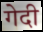
गेदी